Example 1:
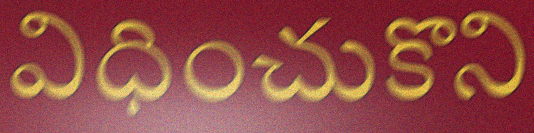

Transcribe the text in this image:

విధించుకొని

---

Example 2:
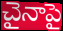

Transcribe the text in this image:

చైనాపై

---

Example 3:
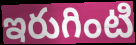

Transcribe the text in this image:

ఇరుగింటి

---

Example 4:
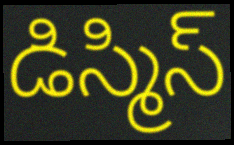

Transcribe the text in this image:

డిస్మిస్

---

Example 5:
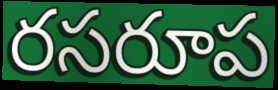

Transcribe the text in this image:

రసరూప